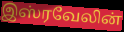
இஸ்ரவேலின்